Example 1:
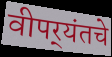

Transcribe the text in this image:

वीपर्यंतचे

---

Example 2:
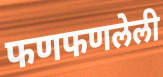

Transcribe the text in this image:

फणफणलेली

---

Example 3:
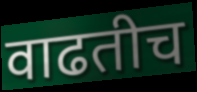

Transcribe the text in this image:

वाढतीच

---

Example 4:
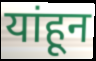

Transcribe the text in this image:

यांहून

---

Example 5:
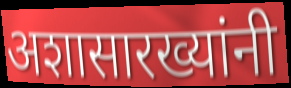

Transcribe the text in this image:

अशासारख्यांनी